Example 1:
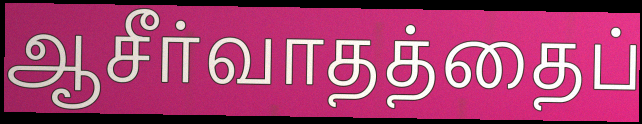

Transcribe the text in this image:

ஆசீர்வாதத்தைப்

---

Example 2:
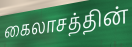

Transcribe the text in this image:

கைலாசத்தின்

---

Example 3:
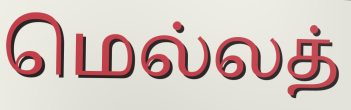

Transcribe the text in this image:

மெல்லத்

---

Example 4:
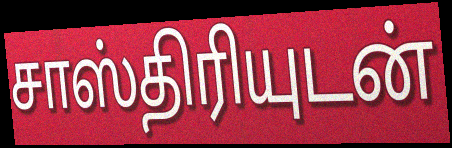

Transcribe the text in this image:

சாஸ்திரியுடன்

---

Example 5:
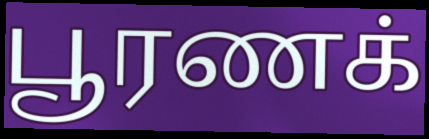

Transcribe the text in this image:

பூரணக்